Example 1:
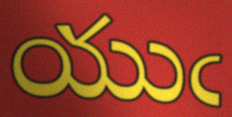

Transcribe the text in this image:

యుఁ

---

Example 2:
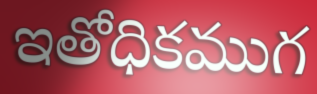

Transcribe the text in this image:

ఇతోధికముగ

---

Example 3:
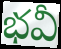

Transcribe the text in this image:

భవీ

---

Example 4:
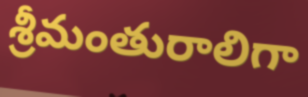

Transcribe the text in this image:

శ్రీమంతురాలిగా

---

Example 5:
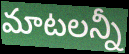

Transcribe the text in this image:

మాటలన్నీ